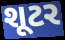
શૂટર